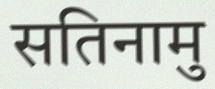
सतिनामु